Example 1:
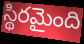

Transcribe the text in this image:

స్థిరమైంది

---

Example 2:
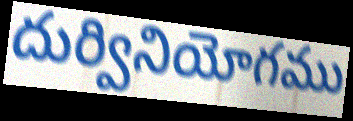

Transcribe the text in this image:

దుర్వినియోగము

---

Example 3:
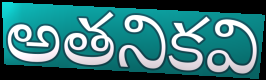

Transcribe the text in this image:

అతనికవి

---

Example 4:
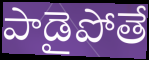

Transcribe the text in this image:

పాడైపోతే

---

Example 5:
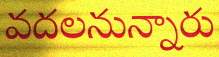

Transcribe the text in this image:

వదలనున్నారు